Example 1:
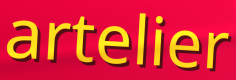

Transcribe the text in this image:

artelier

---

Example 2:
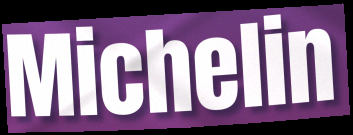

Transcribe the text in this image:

Michelin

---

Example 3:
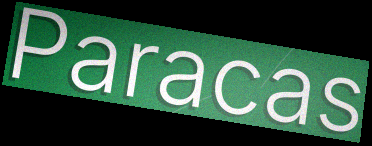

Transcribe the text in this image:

Paracas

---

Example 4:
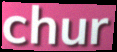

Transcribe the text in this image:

chur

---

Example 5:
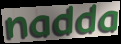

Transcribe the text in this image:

nadda